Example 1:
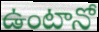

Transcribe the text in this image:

ఉంటానో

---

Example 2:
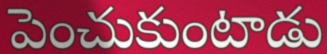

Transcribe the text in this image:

పెంచుకుంటాడు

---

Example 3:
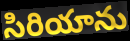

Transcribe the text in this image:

సిరియాను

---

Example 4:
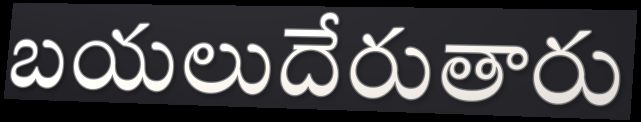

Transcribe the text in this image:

బయలుదేరుతారు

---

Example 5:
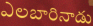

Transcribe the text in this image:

ఎలబారినాడు